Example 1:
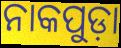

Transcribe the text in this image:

ନାକପୁଡ଼ା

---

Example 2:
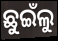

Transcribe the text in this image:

ଛୁଇଁଲୁ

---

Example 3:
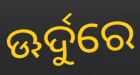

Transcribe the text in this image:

ଊର୍ଦୁରେ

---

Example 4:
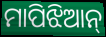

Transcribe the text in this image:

ମାପିଝିଆନ୍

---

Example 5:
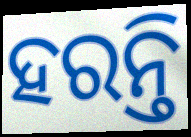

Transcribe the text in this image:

ହରନ୍ତି